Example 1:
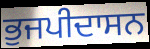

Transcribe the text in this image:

ਭੁਜਪੀਦਾਸਨ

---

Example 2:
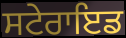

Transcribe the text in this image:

ਸਟੇਰਾਇਡ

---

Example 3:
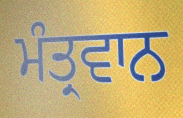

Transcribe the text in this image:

ਮੰਤ੍ਰਵਾਨ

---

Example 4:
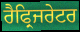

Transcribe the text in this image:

ਰੈਫ੍ਰਿਜਰੇਟਰ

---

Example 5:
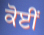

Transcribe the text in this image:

ਕੋਈਂ